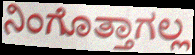
ನಿಂಗೊತ್ತಾಗಲ್ಲ